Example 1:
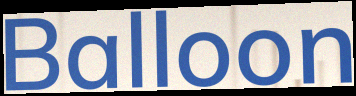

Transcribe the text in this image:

Balloon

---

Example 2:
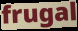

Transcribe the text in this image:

frugal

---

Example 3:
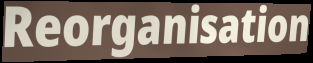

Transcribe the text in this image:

Reorganisation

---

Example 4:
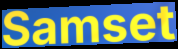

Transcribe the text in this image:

Samset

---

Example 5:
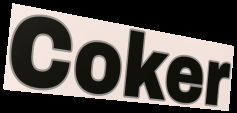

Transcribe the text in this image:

Coker